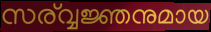
സര്വ്വജ്ഞനുമായ